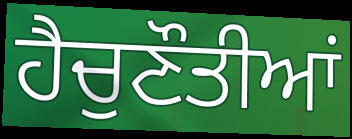
ਹੈਚੁਣੌਤੀਆਂ